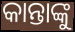
କାନ୍ତାଙ୍କୁ